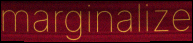
marginalize